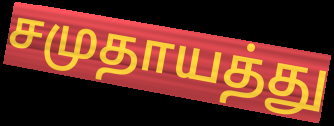
சமுதாயத்து